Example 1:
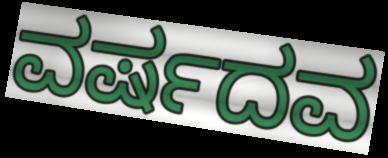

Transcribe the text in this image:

ವರ್ಷದವ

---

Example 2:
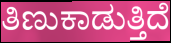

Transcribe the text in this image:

ತಿಣುಕಾಡುತ್ತಿದೆ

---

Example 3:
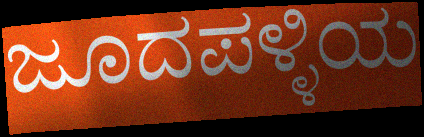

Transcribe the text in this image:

ಜೂದಪಳ್ಳಿಯ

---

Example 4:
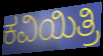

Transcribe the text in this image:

ಕವಿಯಿತ್ರಿ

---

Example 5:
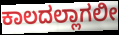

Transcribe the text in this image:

ಕಾಲದಲ್ಲಾಗಲೀ